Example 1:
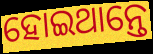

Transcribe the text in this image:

ହୋଇଥାନ୍ତେ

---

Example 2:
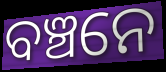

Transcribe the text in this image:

ବଞ୍ଚନେ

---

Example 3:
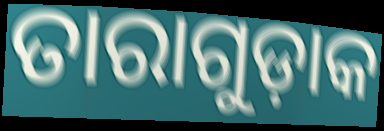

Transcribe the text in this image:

ତାରାଗୁଡ଼ାକ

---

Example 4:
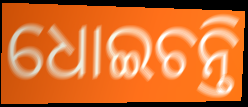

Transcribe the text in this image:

ଧୋଇଚନ୍ତି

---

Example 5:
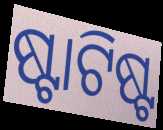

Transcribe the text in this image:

ଷ୍ଟାଟିଷ୍ଟ